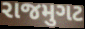
રાજમુગટ